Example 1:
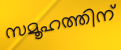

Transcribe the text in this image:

സമൂഹത്തിന്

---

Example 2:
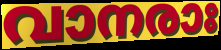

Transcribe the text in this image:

വാനരാഃ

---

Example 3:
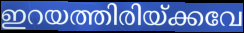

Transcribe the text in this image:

ഇറയത്തിരിയ്ക്കവേ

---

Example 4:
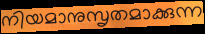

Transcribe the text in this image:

നിയമാനുസൃതമാക്കുന്ന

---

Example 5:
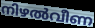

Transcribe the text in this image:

നിഴൽവീണ